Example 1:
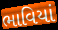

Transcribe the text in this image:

ભાવિયાં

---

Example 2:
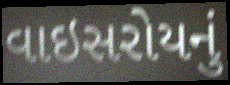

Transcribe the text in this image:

વાઇસરોયનું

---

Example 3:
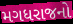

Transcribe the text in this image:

મગધરાજનો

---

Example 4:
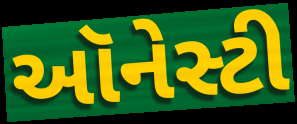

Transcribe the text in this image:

ઑનેસ્ટી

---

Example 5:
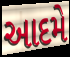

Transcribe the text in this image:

આદમે